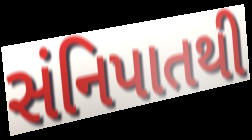
સંનિપાતથી